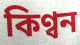
কিণ্বন